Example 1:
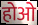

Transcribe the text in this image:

होओ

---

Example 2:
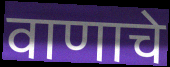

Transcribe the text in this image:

वाणाचे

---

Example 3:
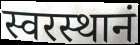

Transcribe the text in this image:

स्वरस्थानं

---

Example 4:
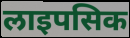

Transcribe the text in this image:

लाइपसिक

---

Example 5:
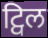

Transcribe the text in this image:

ट्विल